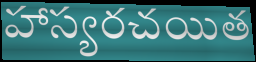
హాస్యరచయిత